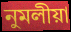
নুমলীয়া